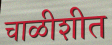
चाळीशीत